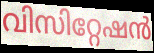
വിസിറ്റേഷൻ